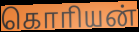
கொரியன்